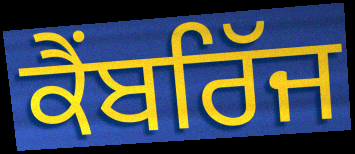
ਕੈਂਬਰਿੱਜ